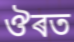
ঔৰত